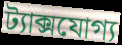
ট্যাক্সযোগ্য